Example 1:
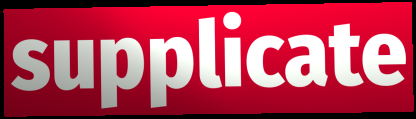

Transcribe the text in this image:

supplicate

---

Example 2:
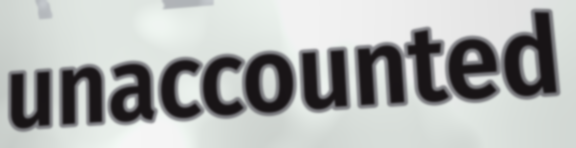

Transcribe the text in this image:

unaccounted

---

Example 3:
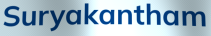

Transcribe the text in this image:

Suryakantham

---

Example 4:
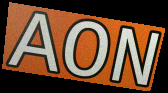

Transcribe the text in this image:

AON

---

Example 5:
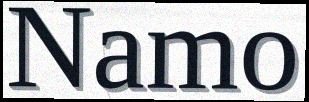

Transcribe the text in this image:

Namo